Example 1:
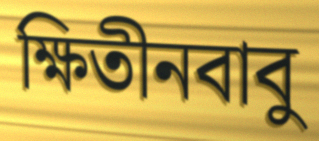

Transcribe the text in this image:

ক্ষিতীনবাবু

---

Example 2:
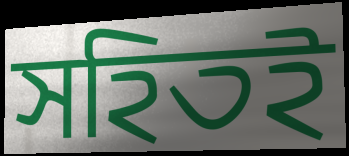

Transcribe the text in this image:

সহিতই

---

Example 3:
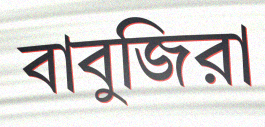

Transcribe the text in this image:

বাবুজিরা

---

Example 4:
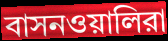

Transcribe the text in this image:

বাসনওয়ালিরা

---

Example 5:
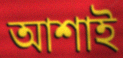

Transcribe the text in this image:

আশাই